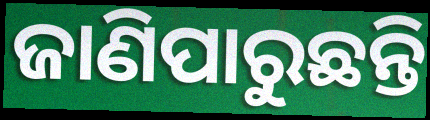
ଜାଣିପାରୁଛନ୍ତି